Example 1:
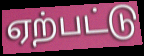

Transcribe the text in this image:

ஏற்பட்டு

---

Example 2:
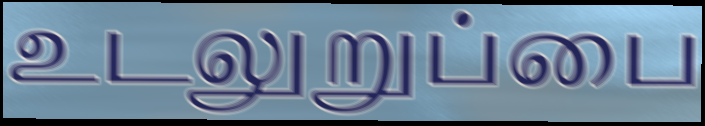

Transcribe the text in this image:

உடலுறுப்பை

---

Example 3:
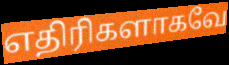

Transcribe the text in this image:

எதிரிகளாகவே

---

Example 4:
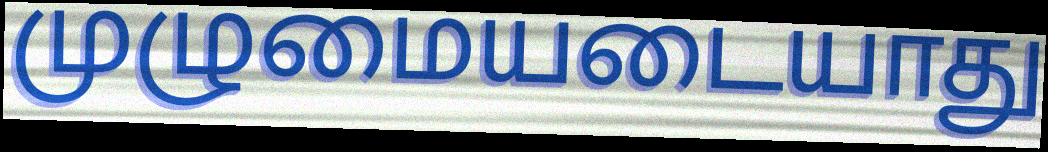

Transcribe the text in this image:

முழுமையடையாது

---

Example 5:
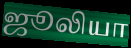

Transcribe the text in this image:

ஜூலியா